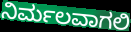
ನಿರ್ಮಲವಾಗಲಿ